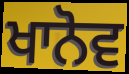
ਖਾਨੋਵ